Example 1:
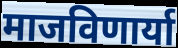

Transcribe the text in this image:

माजविणार्या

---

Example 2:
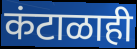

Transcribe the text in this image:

कंटाळाही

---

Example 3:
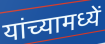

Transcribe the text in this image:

यांच्यामध्यें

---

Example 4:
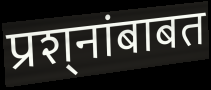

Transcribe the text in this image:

प्रश्नांबाबत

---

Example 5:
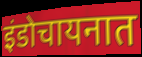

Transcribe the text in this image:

इंडोचायनात